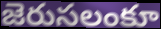
జెరుసలంకూ